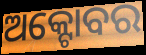
ଅକ୍ଟୋବର